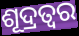
ଶୂଦ୍ରତ୍ଵର